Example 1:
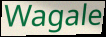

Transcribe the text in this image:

Wagale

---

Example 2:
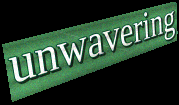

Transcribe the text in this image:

unwavering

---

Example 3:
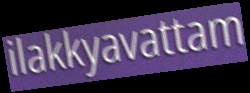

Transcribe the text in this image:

ilakkyavattam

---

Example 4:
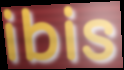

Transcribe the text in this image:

ibis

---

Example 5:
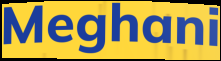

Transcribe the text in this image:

Meghani